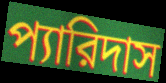
প্যারিদাস